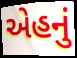
એહનું